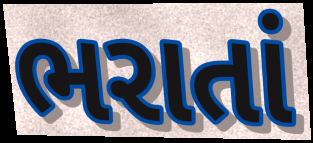
ભરાતાં